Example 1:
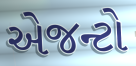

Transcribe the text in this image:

એજન્ટો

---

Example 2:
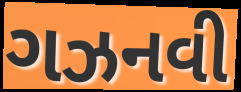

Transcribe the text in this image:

ગઝનવી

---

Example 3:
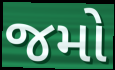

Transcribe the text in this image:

જમો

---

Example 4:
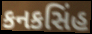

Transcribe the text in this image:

કનકસિંહ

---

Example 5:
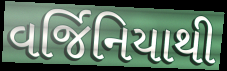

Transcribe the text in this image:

વર્જિનિયાથી